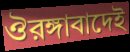
ঔরঙ্গাবাদেই